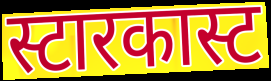
स्टारकास्ट